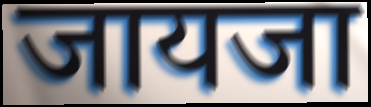
जायजा